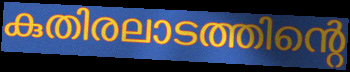
കുതിരലാടത്തിന്റെ